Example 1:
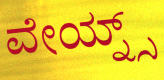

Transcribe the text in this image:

ವೇಯ್ನ್ಸ್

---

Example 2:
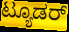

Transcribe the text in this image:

ಟ್ಯೂಡರ್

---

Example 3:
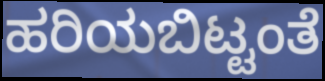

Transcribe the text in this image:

ಹರಿಯಬಿಟ್ಟಂತೆ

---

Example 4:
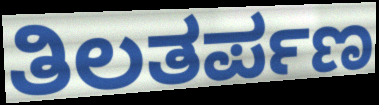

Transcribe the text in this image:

ತಿಲತರ್ಪಣ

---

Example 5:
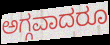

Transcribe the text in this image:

ಅಗ್ಗವಾದರೂ